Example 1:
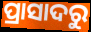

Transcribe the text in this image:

ପ୍ରାସାଦରୁ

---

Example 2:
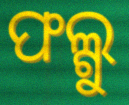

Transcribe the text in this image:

ଫଲ୍ଗୁ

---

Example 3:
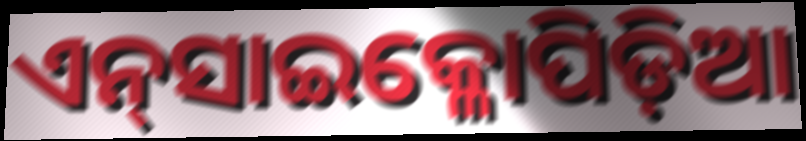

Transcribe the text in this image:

ଏନ୍‌ସାଇକ୍ଳୋପିଡ଼ିଆ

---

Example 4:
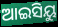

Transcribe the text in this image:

ଆଇସିୟୁ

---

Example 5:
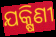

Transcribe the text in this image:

ଯକ୍ଷିଣୀ